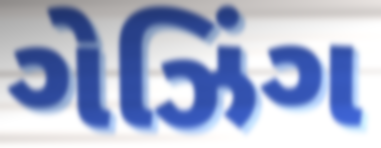
ગેઝિંગ